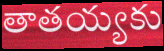
తాతయ్యకు